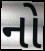
નો